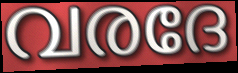
വരദേ